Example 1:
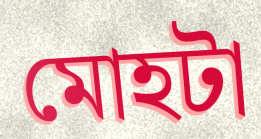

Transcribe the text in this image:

মোহটা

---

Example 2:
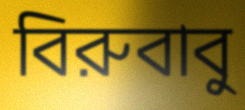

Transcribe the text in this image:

বিরুবাবু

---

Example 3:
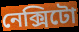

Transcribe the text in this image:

নেক্সিটো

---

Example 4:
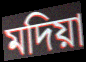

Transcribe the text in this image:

মদিয়া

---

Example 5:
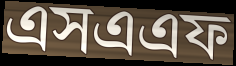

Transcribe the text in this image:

এসএএফ